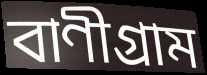
বাণীগ্রাম